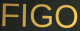
FIGO